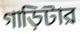
গাড়িটার